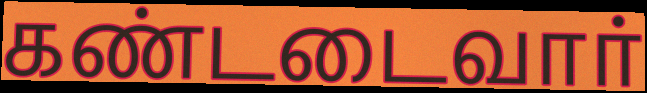
கண்டடைவார்